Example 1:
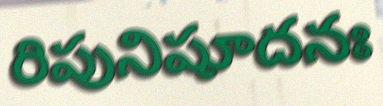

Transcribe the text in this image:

రిపునిషూదనః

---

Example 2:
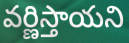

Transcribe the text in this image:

వర్ణిస్తాయని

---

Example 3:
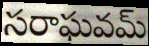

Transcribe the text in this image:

సరాఘవమ్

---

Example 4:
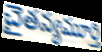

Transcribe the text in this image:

చైతన్యమూర్తి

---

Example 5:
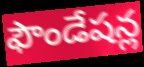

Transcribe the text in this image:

ఫౌండేషన్ల